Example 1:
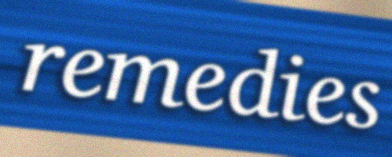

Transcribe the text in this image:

remedies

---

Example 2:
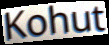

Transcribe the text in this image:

Kohut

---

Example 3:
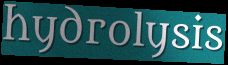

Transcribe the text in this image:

hydrolysis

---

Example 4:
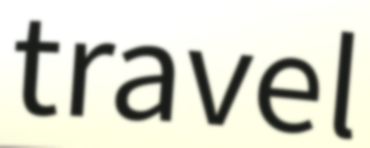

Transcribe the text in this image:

travel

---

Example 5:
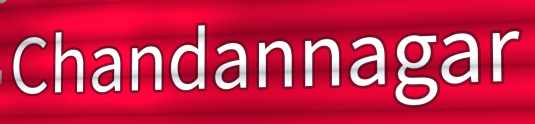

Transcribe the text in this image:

Chandannagar